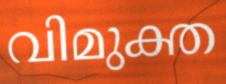
വിമുക്ത